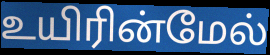
உயிரின்மேல்